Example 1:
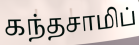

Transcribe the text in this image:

கந்தசாமிப்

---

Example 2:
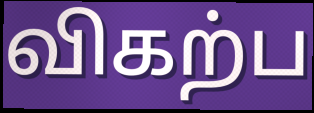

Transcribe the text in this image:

விகற்ப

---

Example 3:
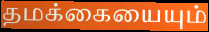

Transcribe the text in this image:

தமக்கையையும்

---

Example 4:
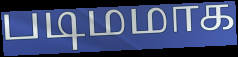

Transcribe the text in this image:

படிமமாக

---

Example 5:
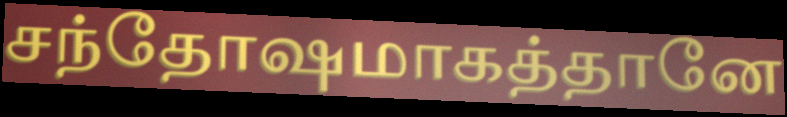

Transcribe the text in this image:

சந்தோஷமாகத்தானே